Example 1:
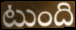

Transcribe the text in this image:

టుంది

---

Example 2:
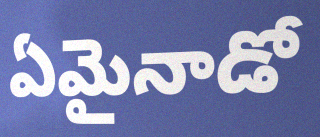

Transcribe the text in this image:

ఏమైనాడో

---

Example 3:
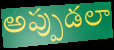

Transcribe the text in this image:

అప్పుడలా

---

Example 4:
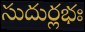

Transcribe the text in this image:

సుదుర్లభః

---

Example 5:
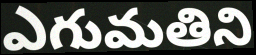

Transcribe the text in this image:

ఎగుమతిని